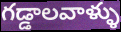
గడ్డాలవాళ్ళు